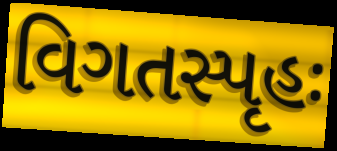
વિગતસ્પૃહઃ